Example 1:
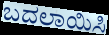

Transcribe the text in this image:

ಬದಲಾಯಿಸಿ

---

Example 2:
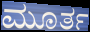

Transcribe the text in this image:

ಮೂರ್ತ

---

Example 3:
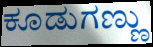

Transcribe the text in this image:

ಕೂಡುಗಣ್ಣು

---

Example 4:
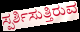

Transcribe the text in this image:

ಸ್ಪರ್ಶಿಸುತ್ತಿರುವ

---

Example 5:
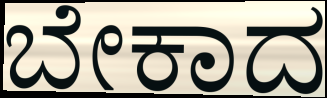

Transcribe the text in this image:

ಬೇಕಾದ